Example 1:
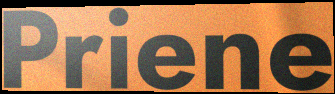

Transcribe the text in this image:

Priene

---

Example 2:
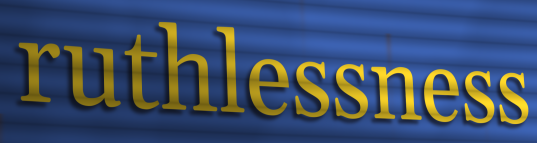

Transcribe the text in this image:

ruthlessness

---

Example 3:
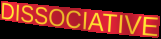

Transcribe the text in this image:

DISSOCIATIVE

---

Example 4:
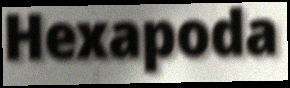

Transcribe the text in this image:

Hexapoda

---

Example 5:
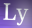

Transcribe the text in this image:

Ly